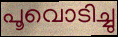
പൂവൊടിച്ചു